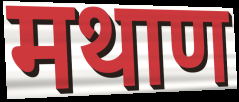
मथाण